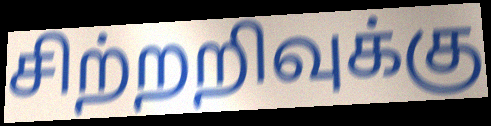
சிற்றறிவுக்கு